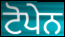
ਟੋਪੇਨ